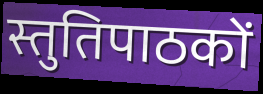
स्तुतिपाठकों